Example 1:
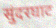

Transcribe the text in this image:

सुंदरघाट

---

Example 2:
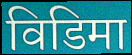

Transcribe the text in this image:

विडिमा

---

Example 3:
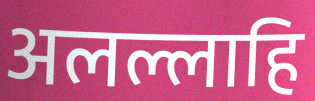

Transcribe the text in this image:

अलल्लाहि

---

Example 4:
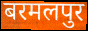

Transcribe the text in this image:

बरमलपुर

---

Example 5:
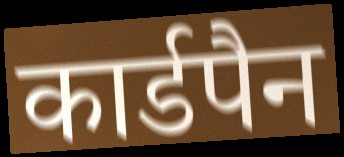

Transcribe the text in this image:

कार्डपैन